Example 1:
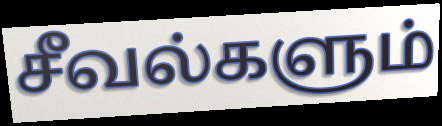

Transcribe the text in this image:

சீவல்களும்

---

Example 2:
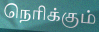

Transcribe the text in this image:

நெரிக்கும்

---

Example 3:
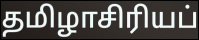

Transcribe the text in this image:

தமிழாசிரியப்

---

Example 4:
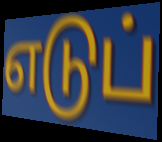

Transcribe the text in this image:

எடுப்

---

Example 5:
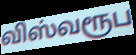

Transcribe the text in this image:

விஸ்வரூப